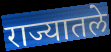
राज्यातले